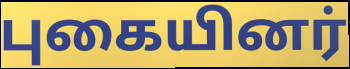
புகையினர்